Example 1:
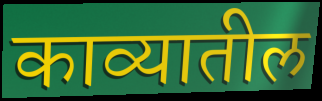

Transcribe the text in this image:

काव्यातील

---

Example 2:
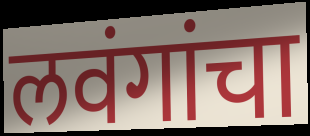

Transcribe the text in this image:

लवंगांचा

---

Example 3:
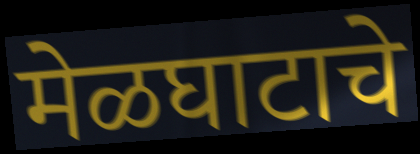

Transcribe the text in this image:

मेळघाटाचे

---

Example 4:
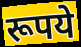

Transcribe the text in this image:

रूपये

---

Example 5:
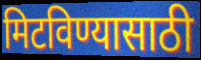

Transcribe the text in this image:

मिटविण्यासाठी